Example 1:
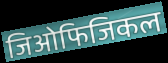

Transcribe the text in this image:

जिओफिजिकल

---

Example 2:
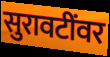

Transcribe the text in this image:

सुरावटींवर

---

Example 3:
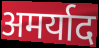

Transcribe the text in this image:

अमर्याद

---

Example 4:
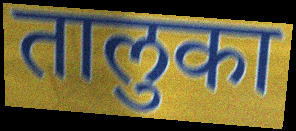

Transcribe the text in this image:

तालुका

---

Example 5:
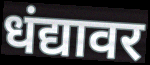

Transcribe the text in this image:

धंद्यावर